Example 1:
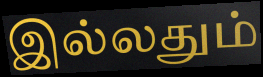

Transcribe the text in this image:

இல்லதும்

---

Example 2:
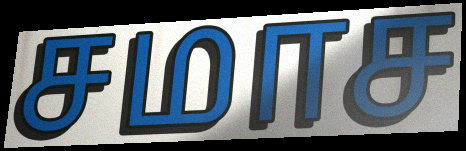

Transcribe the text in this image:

சமாச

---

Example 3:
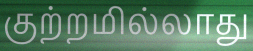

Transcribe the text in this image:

குற்றமில்லாது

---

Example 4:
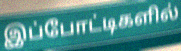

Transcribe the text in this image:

இப்போட்டிகளில்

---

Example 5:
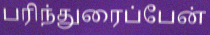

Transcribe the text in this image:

பரிந்துரைப்பேன்